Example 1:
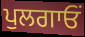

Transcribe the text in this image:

ਪੁਲਗਾਓਂ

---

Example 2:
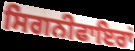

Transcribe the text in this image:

ਸਿਗਨੀਫਾਇਰਾਂ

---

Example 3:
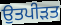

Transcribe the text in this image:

ਉਤਪੀੜਤ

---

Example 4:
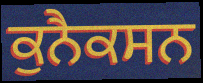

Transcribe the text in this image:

ਕੁਨੈਕਸਨ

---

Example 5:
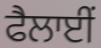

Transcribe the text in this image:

ਫੈਲਾਈਂ